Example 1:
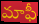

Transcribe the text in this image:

మాఫీ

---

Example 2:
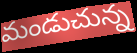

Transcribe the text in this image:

మండుచున్న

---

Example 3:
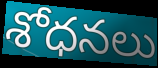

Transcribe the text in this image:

శోధనలు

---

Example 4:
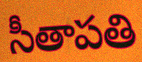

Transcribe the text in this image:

సీతాపతి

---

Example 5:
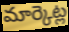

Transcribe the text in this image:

మార్కెట్ల